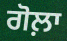
ਗੋਲ਼ਾ